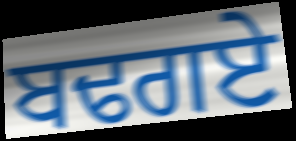
ਬਢਗਏ